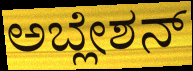
ಅಬ್ಲೇಶನ್